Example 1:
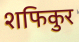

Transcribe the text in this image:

शफिकुर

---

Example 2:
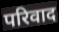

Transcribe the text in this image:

परिवाद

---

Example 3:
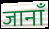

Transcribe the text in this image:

जानाँ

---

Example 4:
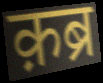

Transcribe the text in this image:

क़ब्र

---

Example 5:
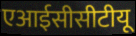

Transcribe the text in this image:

एआईसीसीटीयू